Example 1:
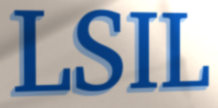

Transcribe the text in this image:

LSIL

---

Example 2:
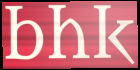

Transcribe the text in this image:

bhk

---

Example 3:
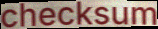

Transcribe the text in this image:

checksum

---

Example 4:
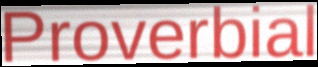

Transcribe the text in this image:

Proverbial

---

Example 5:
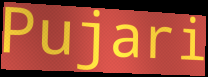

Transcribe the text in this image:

Pujari